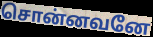
சொன்னவனே